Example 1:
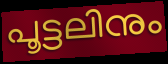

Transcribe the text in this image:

പൂട്ടലിനും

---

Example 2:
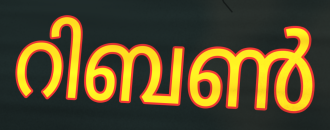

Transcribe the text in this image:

റിബൺ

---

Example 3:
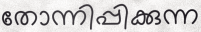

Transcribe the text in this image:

തോന്നിപ്പിക്കുന്ന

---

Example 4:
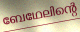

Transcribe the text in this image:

ബേഥേലിന്റെ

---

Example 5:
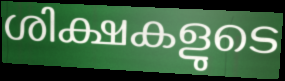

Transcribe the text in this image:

ശിക്ഷകളുടെ